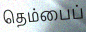
தெம்பைப்